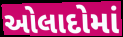
ઓલાદોમાં